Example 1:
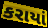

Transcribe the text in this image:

કરાયાં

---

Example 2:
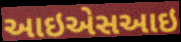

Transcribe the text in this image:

આઇએસઆઇ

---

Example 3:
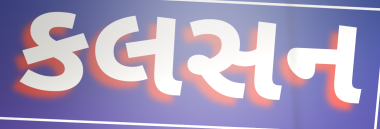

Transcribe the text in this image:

કલસન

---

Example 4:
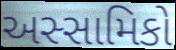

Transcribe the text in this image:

અસ્સામિકો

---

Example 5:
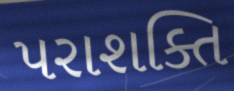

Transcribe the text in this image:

પરાશક્તિ